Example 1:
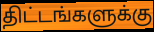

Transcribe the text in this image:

திட்டங்களுக்கு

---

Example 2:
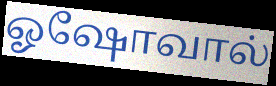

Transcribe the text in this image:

ஓஷோவால்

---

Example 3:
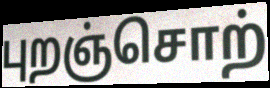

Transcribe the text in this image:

புறஞ்சொற்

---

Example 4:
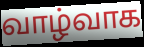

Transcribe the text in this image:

வாழ்வாக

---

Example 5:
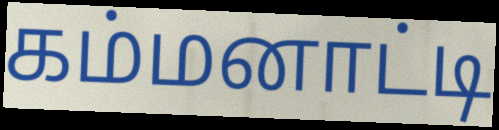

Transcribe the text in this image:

கம்மனாட்டி